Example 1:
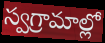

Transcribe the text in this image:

స్వగ్రామాల్లో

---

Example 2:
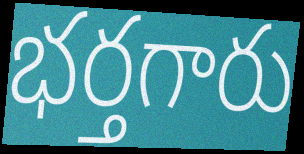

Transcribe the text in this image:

భర్తగారు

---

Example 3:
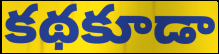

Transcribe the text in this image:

కథకూడా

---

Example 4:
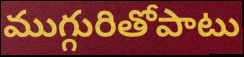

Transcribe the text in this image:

ముగ్గురితోపాటు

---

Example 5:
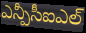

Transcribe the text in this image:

ఎన్పీసీఐఎల్